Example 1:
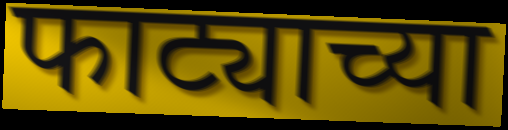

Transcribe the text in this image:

फाट्याच्या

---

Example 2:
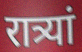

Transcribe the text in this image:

रात्र्यां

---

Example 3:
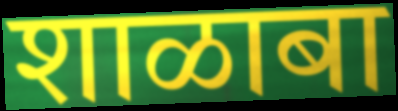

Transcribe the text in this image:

शाळाबा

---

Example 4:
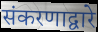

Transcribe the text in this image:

संकरणाद्वारे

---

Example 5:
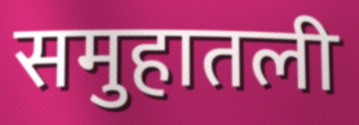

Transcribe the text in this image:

समुहातली